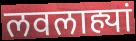
लवलाह्यां